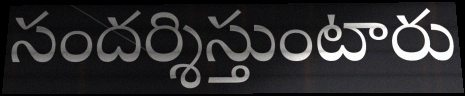
సందర్శిస్తుంటారు